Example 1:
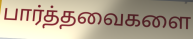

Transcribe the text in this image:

பார்த்தவைகளை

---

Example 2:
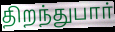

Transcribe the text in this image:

திறந்துபார்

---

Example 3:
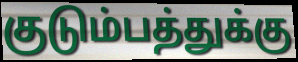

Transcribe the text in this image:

குடும்பத்துக்கு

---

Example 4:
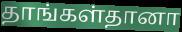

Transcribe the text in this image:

தாங்கள்தானா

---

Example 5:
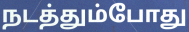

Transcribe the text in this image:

நடத்தும்போது